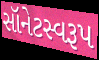
સૉનેટસ્વરૂપ